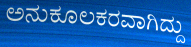
ಅನುಕೂಲಕರವಾಗಿದ್ದು